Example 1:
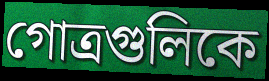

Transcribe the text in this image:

গোত্রগুলিকে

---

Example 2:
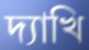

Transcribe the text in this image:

দ্যাখি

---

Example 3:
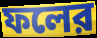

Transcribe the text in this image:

ফলের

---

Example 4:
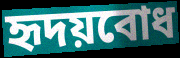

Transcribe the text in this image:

হৃদয়বোধ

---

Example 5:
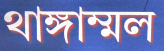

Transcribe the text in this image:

থাঙ্গাম্মল